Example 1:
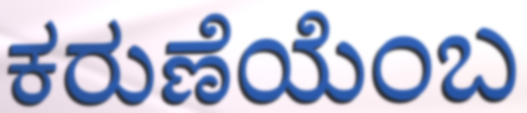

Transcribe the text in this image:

ಕರುಣೆಯೆಂಬ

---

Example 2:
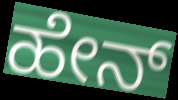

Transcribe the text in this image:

ಹೇನ್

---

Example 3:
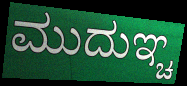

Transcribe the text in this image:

ಮುದುಞ್ಚ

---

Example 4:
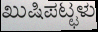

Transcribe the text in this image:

ಖುಷಿಪಟ್ಟಳು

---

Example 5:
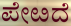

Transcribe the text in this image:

ಪೇೞದೆ